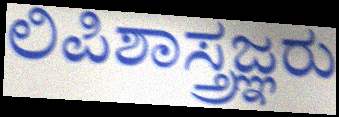
ಲಿಪಿಶಾಸ್ತ್ರಜ್ಞರು